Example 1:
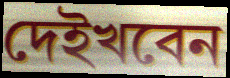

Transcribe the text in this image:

দেইখবেন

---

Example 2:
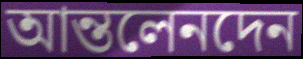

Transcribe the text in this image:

আন্তলেনদেন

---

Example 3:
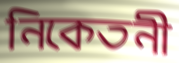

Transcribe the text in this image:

নিকেতনী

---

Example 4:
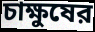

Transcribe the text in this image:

চাক্ষুষের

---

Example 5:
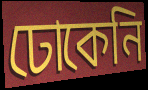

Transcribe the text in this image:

ঢোকেনি